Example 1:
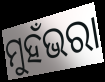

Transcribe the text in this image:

ମୁହଁଭରା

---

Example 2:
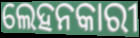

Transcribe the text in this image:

ଲେହନକାରୀ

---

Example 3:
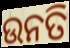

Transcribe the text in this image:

ଉନତି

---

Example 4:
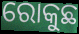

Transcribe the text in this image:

ରୋକୁଛ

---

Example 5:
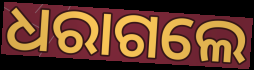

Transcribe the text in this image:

ଧରାଗଲେ